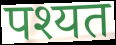
पश्यत